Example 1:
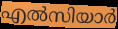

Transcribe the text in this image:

എൽസിയാർ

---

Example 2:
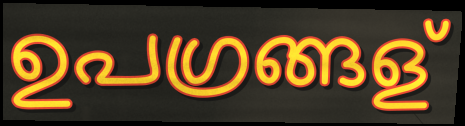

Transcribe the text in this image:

ഉപഗ്രങ്ങള്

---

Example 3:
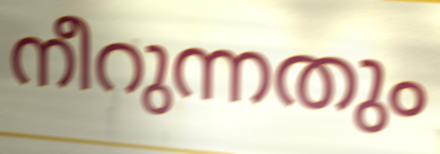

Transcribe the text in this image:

നീറുന്നതും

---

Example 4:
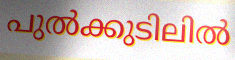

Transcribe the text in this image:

പുൽക്കുടിലിൽ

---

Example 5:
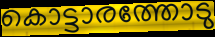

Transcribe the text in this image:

കൊട്ടാരത്തോടു